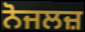
ਨੋਜਲਜ਼